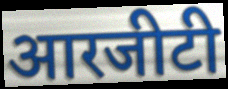
आरजीटी